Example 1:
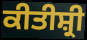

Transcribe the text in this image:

ਕੀਤੀਸ਼੍ਰੀ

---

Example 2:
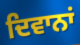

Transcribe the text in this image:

ਦਿਵਾਨਾਂ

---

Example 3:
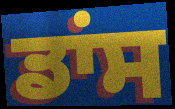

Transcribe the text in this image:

ਡਾਂਸ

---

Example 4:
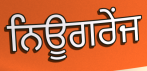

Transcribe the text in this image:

ਨਿਊਗਰੇਂਜ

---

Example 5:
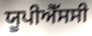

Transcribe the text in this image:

ਯੂਪੀਐੱਸਸੀ